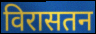
विरासतन